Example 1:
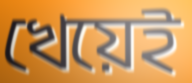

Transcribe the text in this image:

খেয়েই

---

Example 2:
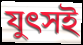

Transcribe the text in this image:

যুৎসই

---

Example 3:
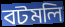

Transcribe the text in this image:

বটমলি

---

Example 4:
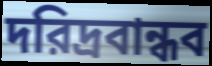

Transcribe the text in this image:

দরিদ্রবান্ধব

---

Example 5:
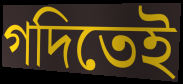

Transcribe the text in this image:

গদিতেই